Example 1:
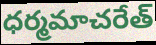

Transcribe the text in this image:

ధర్మమాచరేత్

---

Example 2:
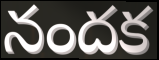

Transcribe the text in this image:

నందక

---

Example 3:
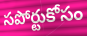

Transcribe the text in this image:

సపోర్టుకోసం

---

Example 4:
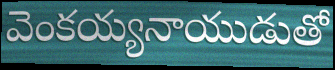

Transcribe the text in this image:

వెంకయ్యనాయుడుతో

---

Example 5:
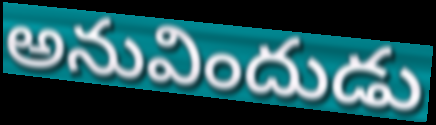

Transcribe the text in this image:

అనువిందుడు